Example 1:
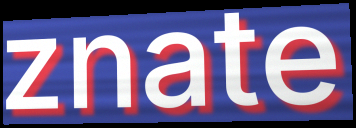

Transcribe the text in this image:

znate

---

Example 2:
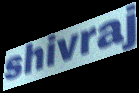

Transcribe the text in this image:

shivraj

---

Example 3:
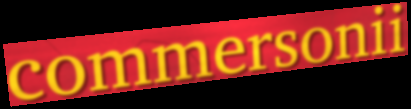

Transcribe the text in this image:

commersonii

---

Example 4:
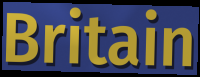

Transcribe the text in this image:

Britain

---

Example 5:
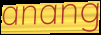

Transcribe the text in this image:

anang